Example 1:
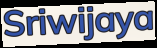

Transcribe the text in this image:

Sriwijaya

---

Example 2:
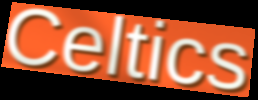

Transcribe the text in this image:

Celtics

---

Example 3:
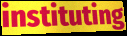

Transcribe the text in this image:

instituting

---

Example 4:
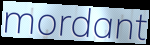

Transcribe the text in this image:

mordant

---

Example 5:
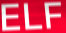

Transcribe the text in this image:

ELF